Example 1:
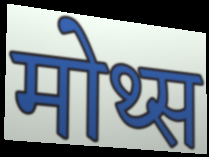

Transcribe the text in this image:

मोथ्स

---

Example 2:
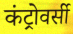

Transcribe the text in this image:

कंट्रोवर्सी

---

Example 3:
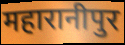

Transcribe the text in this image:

महारानीपुर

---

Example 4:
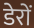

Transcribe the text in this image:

डेरों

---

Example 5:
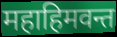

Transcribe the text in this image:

महाहिमवन्त